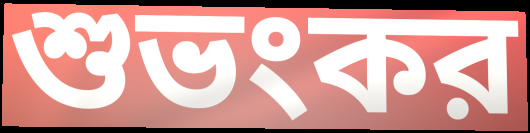
শুভংকর